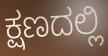
ಕ್ಷಣದಲ್ಲಿ